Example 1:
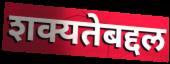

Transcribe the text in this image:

शक्यतेबद्दल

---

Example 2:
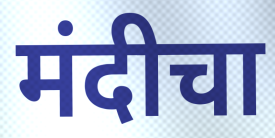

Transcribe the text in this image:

मंदीचा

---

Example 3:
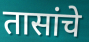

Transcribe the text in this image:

तासांचे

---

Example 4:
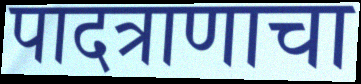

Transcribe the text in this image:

पादत्राणाचा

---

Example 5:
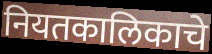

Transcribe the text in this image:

नियतकालिकाचे